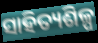
ସାହିତ୍ୟଶିଳ୍ପ